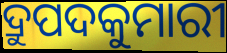
ଦ୍ରୁପଦକୁମାରୀ